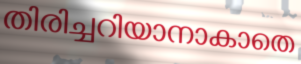
തിരിച്ചറിയാനാകാതെ